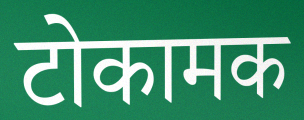
टोकामक